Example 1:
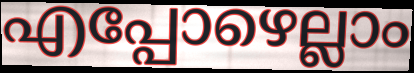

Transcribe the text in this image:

എപ്പോഴെല്ലാം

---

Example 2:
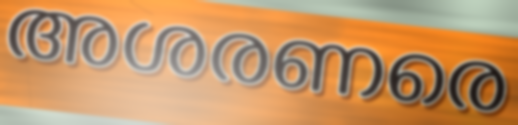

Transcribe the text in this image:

അശരണരെ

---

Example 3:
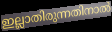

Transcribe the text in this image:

ഇല്ലാതിരുന്നതിനാൽ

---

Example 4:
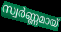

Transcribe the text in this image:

സ്വർണ്ണമായ്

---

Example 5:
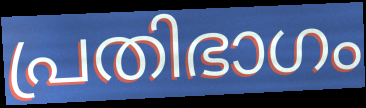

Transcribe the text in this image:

പ്രതിഭാഗം